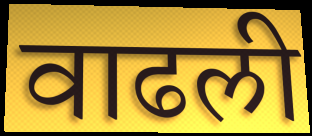
वाढली